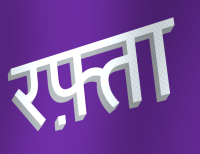
रफ़्ता